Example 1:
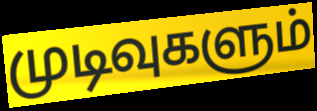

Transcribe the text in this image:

முடிவுகளும்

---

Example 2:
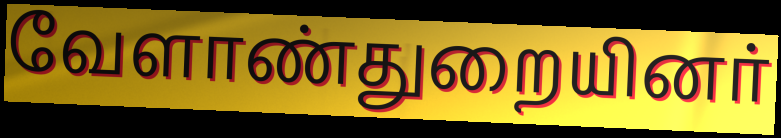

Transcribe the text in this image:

வேளாண்துறையினர்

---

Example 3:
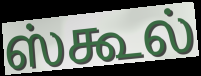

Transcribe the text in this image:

ஸ்கூல்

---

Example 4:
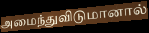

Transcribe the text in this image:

அமைந்துவிடுமானால்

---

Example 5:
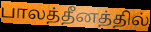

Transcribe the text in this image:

பாலத்தீனத்தில்